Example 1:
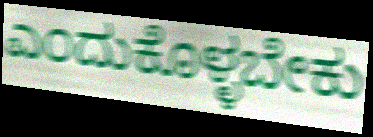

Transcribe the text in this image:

ಎಂದುಕೊಳ್ಳಬೇಕು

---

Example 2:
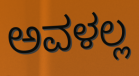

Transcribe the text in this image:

ಅವಳಲ್ಲ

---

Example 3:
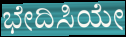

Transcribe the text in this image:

ಭೇದಿಸಿಯೇ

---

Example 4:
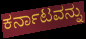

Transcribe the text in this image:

ಕರ್ನಾಟವನ್ನು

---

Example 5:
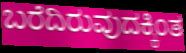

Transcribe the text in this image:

ಬರೆದಿರುವುದಕ್ಕಿಂತ